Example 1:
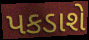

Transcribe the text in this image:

પકડાશે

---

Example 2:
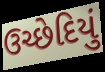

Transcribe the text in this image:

ઉચ્છેદિયું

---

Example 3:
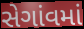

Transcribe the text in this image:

સેગાંવમાં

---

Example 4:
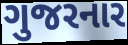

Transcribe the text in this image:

ગુજરનાર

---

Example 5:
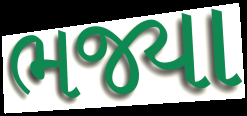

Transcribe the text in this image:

ભજ્યા